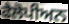
ਫੈਲੋਪੀਅਨ